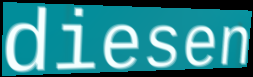
diesen